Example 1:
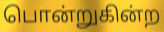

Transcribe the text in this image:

பொன்றுகின்ற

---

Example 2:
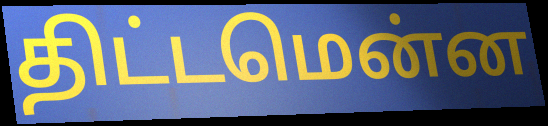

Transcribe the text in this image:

திட்டமென்ன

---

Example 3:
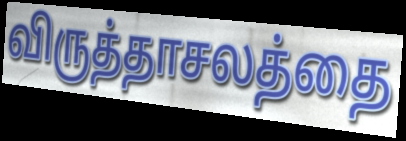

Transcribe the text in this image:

விருத்தாசலத்தை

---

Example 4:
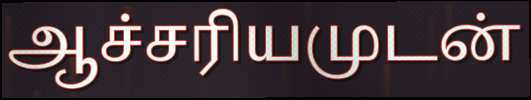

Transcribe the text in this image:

ஆச்சரியமுடன்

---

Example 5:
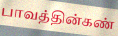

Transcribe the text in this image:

பாவத்தின்கண்